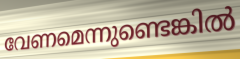
വേണമെന്നുണ്ടെങ്കിൽ